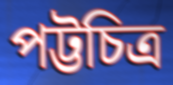
পট্টচিত্র